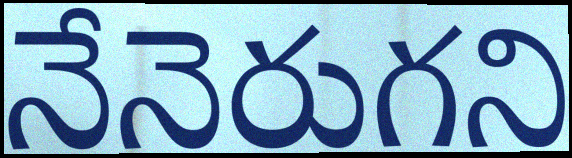
నేనెరుగని